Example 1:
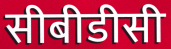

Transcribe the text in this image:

सीबीडीसी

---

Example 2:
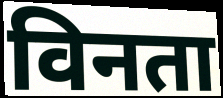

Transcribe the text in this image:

विनता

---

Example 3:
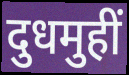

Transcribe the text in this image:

दुधमुहीं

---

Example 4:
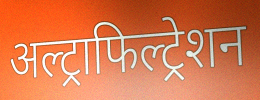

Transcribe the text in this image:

अल्ट्राफिल्ट्रेशन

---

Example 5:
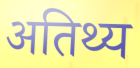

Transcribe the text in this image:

अतिथ्य